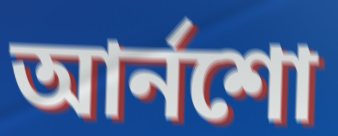
আর্নশো